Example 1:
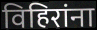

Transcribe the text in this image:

विहिरांना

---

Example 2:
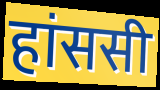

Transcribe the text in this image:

हांससी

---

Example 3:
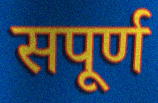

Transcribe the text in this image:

सपूर्ण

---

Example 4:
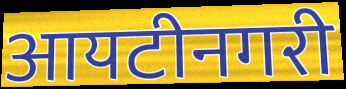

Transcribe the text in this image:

आयटीनगरी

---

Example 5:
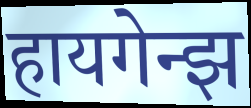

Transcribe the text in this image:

हायगेन्झ